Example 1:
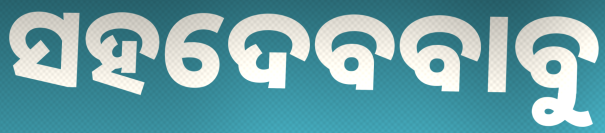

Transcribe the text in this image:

ସହଦେବବାବୁ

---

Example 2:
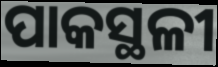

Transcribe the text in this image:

ପାକସ୍ଥଳୀ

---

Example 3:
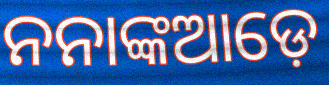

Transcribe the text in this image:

ନନାଙ୍କଆଡ଼େ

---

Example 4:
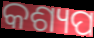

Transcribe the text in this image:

କଶ୍ୟପ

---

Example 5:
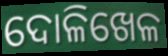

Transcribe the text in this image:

ଦୋଳିଖେଳ